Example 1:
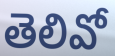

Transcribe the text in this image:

తెలివో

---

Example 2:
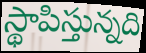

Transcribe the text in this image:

స్థాపిస్తున్నది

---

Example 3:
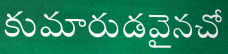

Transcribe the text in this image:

కుమారుడవైనచో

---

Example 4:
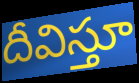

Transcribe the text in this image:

దీవిస్తూ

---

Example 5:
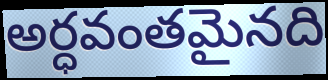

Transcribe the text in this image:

అర్ధవంతమైనది